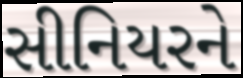
સીનિયરને